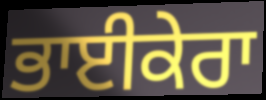
ਭਾਈਕੇਰਾ